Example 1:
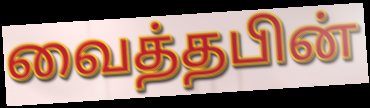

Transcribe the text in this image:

வைத்தபின்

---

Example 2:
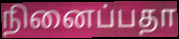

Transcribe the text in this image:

நினைப்பதா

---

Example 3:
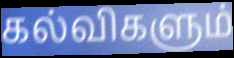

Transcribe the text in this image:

கல்விகளும்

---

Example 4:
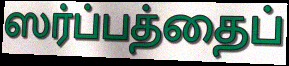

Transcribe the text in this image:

ஸர்ப்பத்தைப்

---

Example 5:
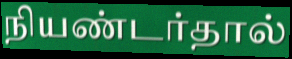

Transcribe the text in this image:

நியண்டர்தால்